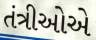
તંત્રીઓએ